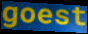
goest